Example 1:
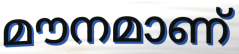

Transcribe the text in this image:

മൗനമാണ്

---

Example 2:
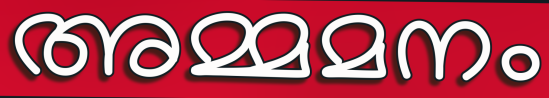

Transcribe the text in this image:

അമ്മമനം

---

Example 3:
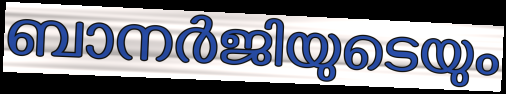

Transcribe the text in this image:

ബാനർജിയുടെയും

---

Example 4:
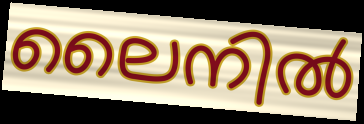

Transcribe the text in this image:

ലൈനിൽ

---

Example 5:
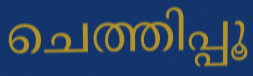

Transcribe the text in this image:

ചെത്തിപ്പൂ